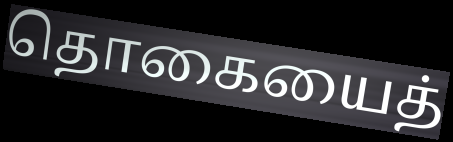
தொகையைத்